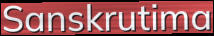
Sanskrutima